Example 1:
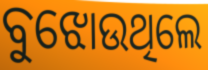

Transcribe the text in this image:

ବୁଝୋଉଥିଲେ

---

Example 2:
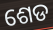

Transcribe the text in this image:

ଶେଡ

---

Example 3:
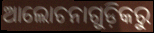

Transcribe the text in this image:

ଆଲୋଚନାଗୁଡ଼ିକରୁ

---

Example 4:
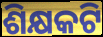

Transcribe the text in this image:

ଶିକ୍ଷକଟି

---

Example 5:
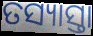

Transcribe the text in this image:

ତସ୍ୟାସ୍ତା